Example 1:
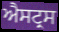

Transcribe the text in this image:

ਐਸਟ੍ਰਸ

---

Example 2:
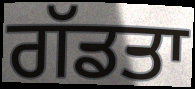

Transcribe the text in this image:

ਗੱਡਤਾ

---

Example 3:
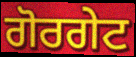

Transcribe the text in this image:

ਗੋਰਗੇਟ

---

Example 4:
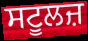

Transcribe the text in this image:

ਸਟੂਲਜ਼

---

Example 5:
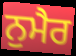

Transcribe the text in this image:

ਨੁਮੈਰ